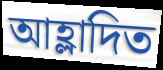
আহ্লাদিত